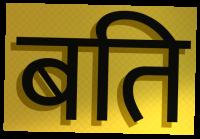
बति